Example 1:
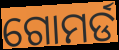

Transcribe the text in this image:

ଗୋମର୍ଡ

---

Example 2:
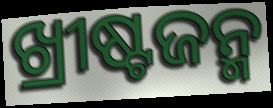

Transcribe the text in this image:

ଖ୍ରୀଷ୍ଟଜନ୍ମ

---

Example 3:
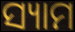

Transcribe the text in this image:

ସ୍ୟାମ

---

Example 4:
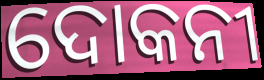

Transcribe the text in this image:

ଦୋକନୀ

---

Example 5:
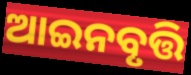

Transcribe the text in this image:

ଆଇନବୃତ୍ତି